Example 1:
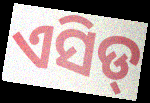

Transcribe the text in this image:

ଏସିଡ୍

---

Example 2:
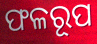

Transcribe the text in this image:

ଫଳରୂପ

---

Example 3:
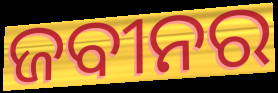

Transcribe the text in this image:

ଜବୀନର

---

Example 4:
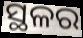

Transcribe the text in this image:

ସ୍ଥଳର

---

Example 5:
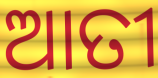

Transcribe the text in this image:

ଆତୀ